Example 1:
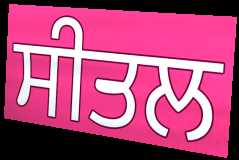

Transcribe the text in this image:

ਸੀਤਲ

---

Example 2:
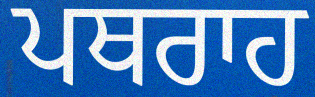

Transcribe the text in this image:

ਪਥਰਾਹ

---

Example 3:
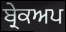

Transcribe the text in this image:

ਬ੍ਰੇਕਅਪ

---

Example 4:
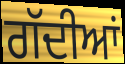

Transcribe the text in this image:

ਗੱਦੀਆਂ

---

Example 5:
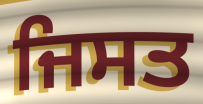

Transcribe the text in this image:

ਜਿਸਤ